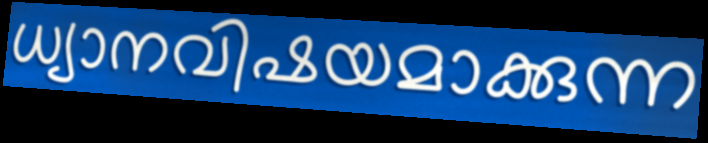
ധ്യാനവിഷയമാക്കുന്ന